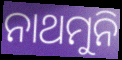
ନାଥମୁନି